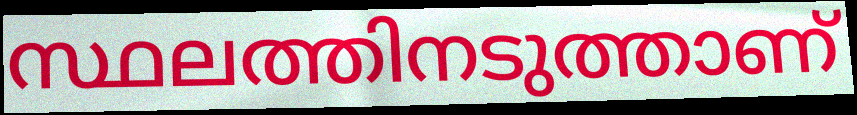
സ്ഥലത്തിനടുത്താണ്